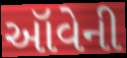
ઑવેની